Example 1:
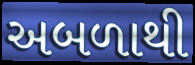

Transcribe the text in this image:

અબળાથી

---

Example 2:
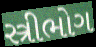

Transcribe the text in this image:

સ્ત્રીભોગ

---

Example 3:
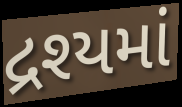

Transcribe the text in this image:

દ્રશ્યમાં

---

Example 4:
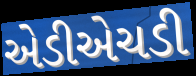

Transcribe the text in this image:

એડીએચડી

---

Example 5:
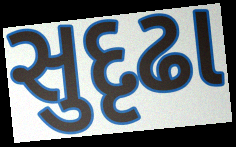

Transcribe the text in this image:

સુદૃઢા